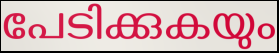
പേടിക്കുകയും